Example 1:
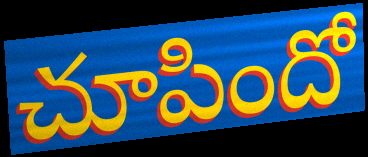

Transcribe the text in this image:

చూపిందో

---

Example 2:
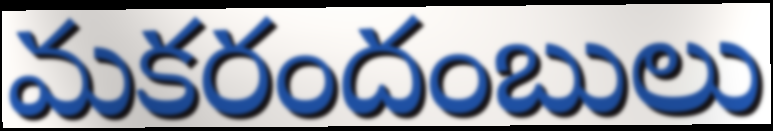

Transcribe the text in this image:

మకరందంబులు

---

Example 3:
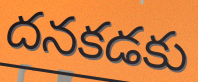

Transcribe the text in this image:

దనకడకు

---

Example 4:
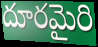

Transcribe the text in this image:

దూరమైరి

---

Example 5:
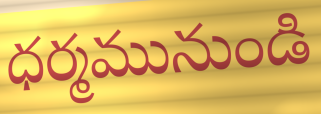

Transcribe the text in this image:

ధర్మమునుండి